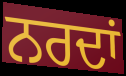
ਨਰਦਾਂ